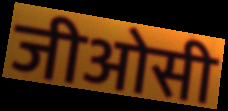
जीओसी